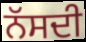
ਨੱਸਦੀ